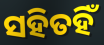
ସହିତହିଁ